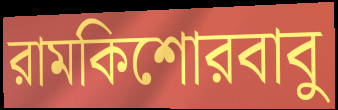
রামকিশোরবাবু